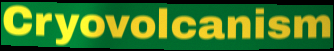
Cryovolcanism